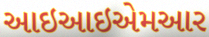
આઇઆઇએમઆર